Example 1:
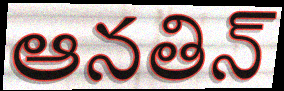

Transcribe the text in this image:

ఆనతిన్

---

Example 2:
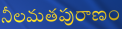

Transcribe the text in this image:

నీలమతపురాణం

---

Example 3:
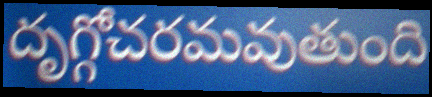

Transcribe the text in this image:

దృగ్గోచరమవుతుంది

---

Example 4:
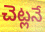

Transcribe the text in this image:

చెట్లనే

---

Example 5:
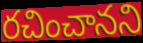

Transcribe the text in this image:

రచించానని